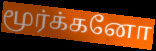
மூர்க்கனோ